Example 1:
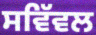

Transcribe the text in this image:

ਸਵਿੱਵਲ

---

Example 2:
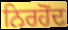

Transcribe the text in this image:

ਨਿਰਹੋਂਦ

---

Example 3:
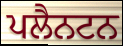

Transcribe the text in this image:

ਪਲੈਨਟਨ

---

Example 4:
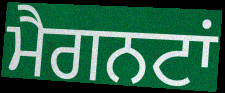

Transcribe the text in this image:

ਮੈਗਨਟਾਂ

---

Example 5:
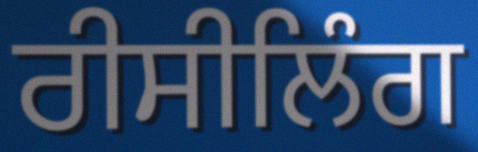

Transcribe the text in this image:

ਰੀਸੀਲਿੰਗ